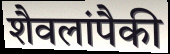
शैवलांपैकी